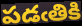
పడఁతికి